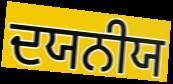
ਦਯਨੀਯ